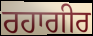
ਰਹਾਗੀਰ